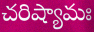
చరిష్యామః